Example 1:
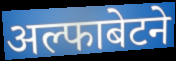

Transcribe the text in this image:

अल्फाबेटने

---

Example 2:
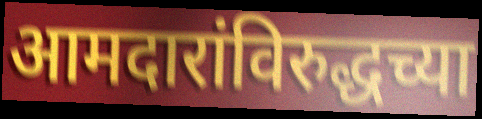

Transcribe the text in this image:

आमदारांविरुद्धच्या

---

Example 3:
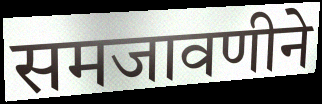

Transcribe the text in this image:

समजावणीने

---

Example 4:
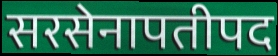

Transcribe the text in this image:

सरसेनापतीपद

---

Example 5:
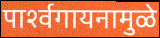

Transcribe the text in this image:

पार्श्वगायनामुळे